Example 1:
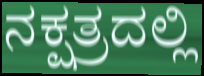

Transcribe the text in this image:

ನಕ್ಷತ್ರದಲ್ಲಿ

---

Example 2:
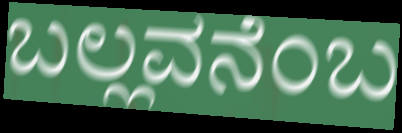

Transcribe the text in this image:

ಬಲ್ಲವನೆಂಬ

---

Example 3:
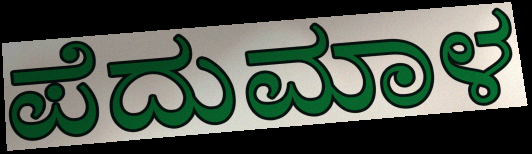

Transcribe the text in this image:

ಪೆದುಮಾಳ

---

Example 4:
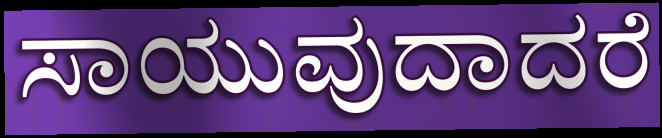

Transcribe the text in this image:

ಸಾಯುವುದಾದರೆ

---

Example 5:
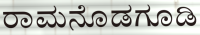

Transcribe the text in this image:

ರಾಮನೊಡಗೂಡಿ